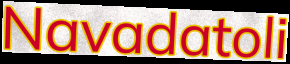
Navadatoli